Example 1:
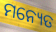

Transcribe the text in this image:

ମନ୍ୟେତ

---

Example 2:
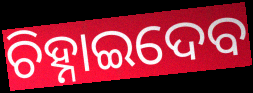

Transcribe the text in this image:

ଚିହ୍ନାଇଦେବ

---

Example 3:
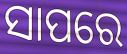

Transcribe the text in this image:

ସାପରେ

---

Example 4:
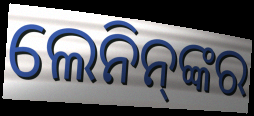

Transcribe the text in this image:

ଲେନିନ୍‌ଙ୍କର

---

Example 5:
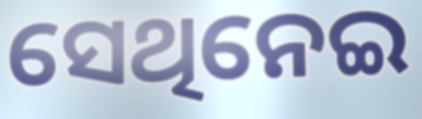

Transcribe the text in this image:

ସେଥିନେଇ